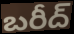
బరీద్